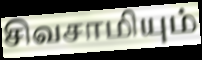
சிவசாமியும்